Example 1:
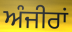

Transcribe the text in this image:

ਅੰਜੀਰਾਂ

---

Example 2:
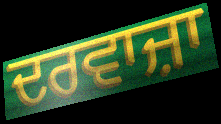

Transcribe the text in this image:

ਦਰਵਾਜ਼ਾ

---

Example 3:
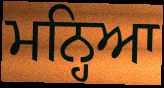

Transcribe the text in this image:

ਮਨ੍ਹਿਆ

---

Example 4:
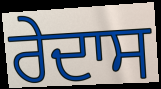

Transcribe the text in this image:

ਰੇਦਾਸ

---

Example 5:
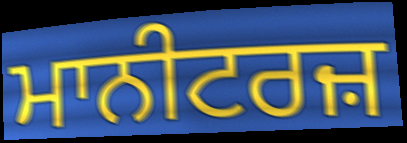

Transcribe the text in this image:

ਮਾਨੀਟਰਜ਼